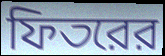
ফিতরের